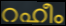
റഹീം